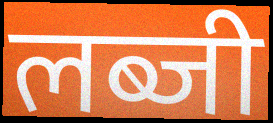
लब्जी